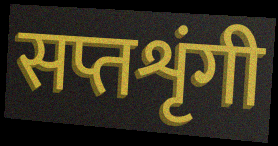
सप्तशृंगी